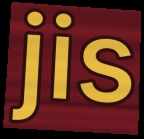
jis